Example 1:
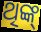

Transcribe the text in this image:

ଥିଙ୍କ୍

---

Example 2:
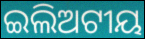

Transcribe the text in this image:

ଇଲିଅଟୀୟ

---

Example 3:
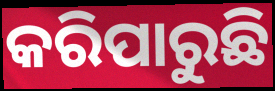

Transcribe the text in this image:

କରିପାରୁଛି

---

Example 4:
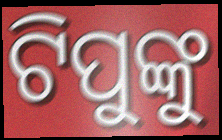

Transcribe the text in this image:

ଟିପୁଙ୍କୁ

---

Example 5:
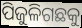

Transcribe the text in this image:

ପିଜୁଳିଗଛକୁ